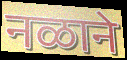
नळाने